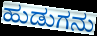
ಹುಡುಗನು